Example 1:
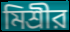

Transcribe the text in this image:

মিশ্রীর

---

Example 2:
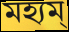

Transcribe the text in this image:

মহ্যম্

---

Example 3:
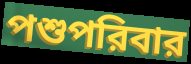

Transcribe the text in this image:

পশুপরিবার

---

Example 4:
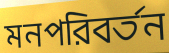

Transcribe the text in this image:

মনপরিবর্তন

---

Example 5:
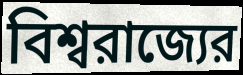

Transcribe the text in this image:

বিশ্বরাজ্যের